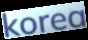
korea